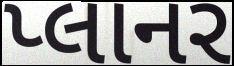
પ્લાનર